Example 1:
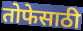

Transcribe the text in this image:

तोफेसाठी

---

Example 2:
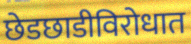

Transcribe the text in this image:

छेडछाडीविरोधात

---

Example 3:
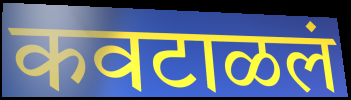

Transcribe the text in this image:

कवटाळलं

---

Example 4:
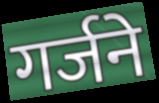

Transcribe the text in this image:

गर्जने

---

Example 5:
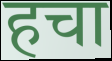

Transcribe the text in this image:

हचा